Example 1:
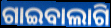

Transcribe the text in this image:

ଗାଇବାଲାଗି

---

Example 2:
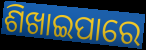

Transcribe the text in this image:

ଶିଖାଇପାରେ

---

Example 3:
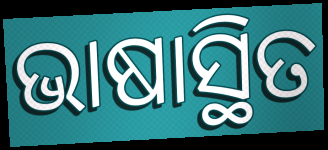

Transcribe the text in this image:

ଭାଷାସ୍ଥିତ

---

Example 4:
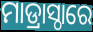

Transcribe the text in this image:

ମାଡ୍ରାସ୍ଠାରେ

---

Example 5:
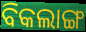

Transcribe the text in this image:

ବିକଲାଙ୍ଗ